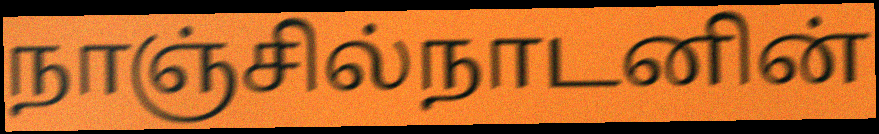
நாஞ்சில்நாடனின்